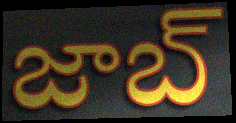
జాబ్